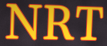
NRT